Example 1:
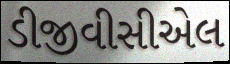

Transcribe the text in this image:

ડીજીવીસીએલ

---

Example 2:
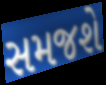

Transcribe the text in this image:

સમજશે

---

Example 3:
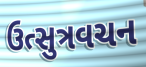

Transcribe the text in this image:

ઉત્સુત્રવચન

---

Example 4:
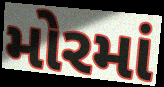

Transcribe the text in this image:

મોરમાં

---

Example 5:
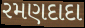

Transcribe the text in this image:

રમણદાદા